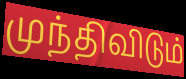
முந்திவிடும்